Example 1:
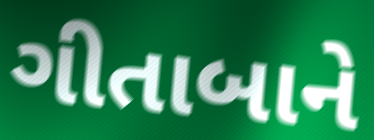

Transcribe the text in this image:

ગીતાબાને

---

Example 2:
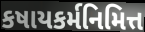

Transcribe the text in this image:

કષાયકર્મનિમિત્ત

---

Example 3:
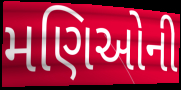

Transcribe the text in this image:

મણિઓની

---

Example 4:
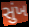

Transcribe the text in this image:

સુંખ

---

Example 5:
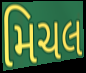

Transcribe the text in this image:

મિચલ